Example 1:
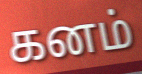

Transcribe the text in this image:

கனம்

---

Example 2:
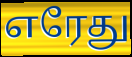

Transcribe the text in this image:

எரேது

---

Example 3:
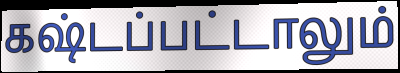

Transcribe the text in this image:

கஷ்டப்பட்டாலும்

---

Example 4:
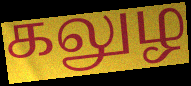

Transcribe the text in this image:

கலுழ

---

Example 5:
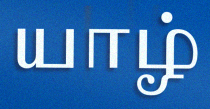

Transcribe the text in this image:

யாழ்